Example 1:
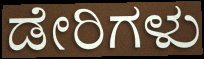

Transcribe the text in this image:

ಡೇರಿಗಳು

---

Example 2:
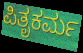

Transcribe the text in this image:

ಪಿತೃಕರ್ಮ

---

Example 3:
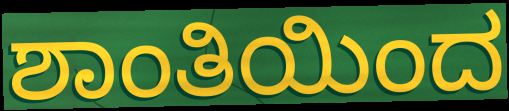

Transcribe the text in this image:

ಶಾಂತಿಯಿಂದ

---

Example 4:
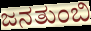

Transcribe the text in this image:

ಜನತುಂಬಿ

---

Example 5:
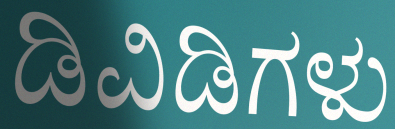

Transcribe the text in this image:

ಡಿವಿಡಿಗಳು